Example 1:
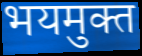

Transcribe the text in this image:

भयमुक्‍त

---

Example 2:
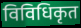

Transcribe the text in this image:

विविधिकृत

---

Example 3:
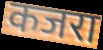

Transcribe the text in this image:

कजरा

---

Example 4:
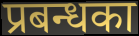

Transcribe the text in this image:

प्रबन्धका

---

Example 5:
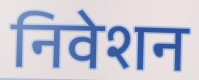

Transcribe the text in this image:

निवेशन